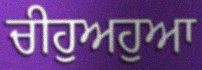
ਚੀਹੁਅਹੁਆ